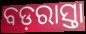
ବଡ଼ରାସ୍ତା